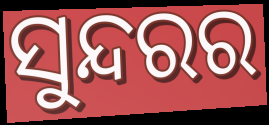
ସୁନ୍ଦରର